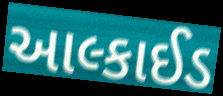
આલ્કાઈડ